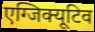
एग्जिक्यूटिव